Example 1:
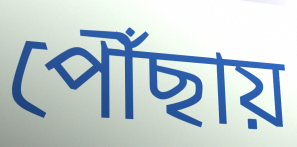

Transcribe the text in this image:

পৌঁছায়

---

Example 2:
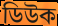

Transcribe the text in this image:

ডিউক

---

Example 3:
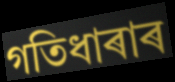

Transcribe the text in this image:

গতিধাৰাৰ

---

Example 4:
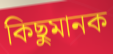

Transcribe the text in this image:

কিছুমানক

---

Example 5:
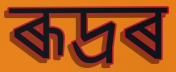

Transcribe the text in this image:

ৰূদ্ৰৰ